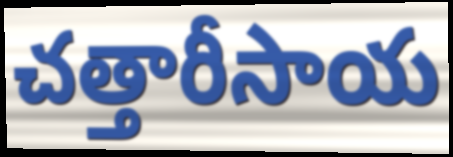
చత్తారీసాయ